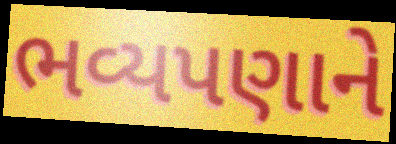
ભવ્યપણાને